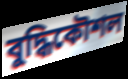
বুদ্ধিকৌশল